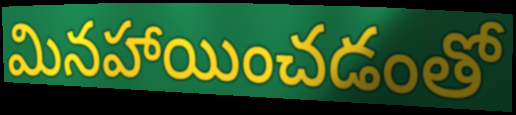
మినహాయించడంతో